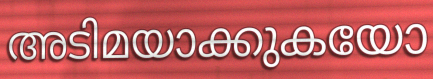
അടിമയാക്കുകയോ